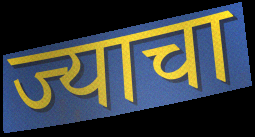
ज्याचा